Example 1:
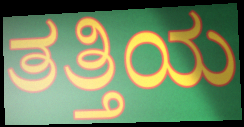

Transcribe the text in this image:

ತತ್ತಿಯ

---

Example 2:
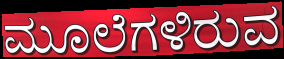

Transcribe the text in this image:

ಮೂಲೆಗಳಿರುವ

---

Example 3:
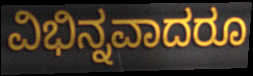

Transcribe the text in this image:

ವಿಭಿನ್ನವಾದರೂ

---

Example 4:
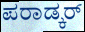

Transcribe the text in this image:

ಪರಾಡ್ಕರ್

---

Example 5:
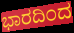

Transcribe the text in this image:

ಭಾರದಿಂದ